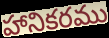
హానికరము